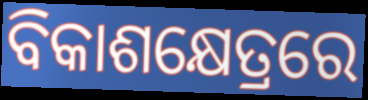
ବିକାଶକ୍ଷେତ୍ରରେ